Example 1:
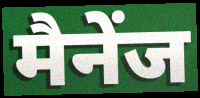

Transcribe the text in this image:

मैनेंज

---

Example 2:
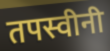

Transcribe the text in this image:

तपस्वीनी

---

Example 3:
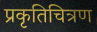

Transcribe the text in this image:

प्रकृतिचित्रण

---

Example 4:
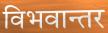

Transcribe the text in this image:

विभवान्तर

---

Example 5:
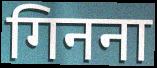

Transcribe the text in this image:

गिनना